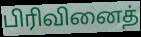
பிரிவினைத்